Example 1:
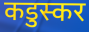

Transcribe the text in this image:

कडुस्कर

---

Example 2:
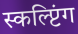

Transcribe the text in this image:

स्कल्प्टिंग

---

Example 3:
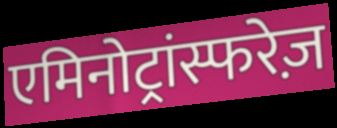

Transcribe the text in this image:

एमिनोट्रांस्फरेज़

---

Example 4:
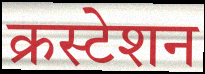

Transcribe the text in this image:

क्रस्टेशन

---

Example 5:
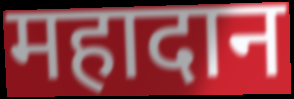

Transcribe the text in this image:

महादान